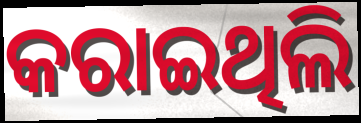
କରାଇଥିଲି